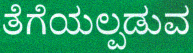
ತೆಗೆಯಲ್ಪಡುವ